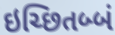
ઇચ્છિતબ્બં